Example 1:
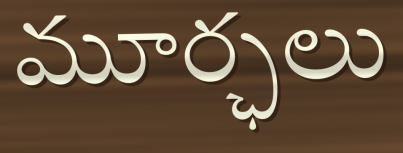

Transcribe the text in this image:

మూర్ఛలు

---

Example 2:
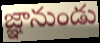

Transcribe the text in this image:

జ్ఞానుండు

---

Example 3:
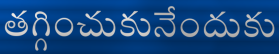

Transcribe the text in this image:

తగ్గించుకునేందుకు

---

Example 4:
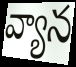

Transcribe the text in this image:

వ్యాన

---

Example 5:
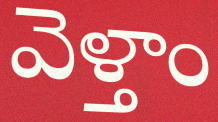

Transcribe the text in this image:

వెళ్తాం